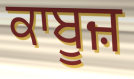
ਕਾਬੂਜ਼